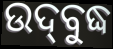
ଉଦ୍‌ବୁଦ୍ଧ